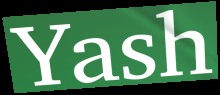
Yash